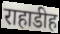
राहाडीह